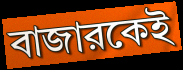
বাজারকেই